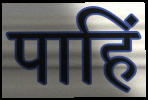
पाहिं